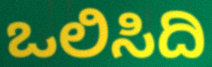
ಒಲಿಸಿದಿ